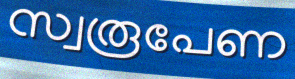
സ്വരൂപേണ